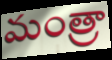
మంత్రా